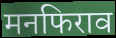
मनफिराव